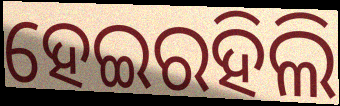
ହେଇରହିଲି